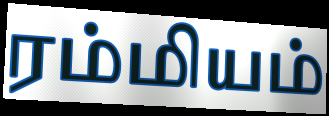
ரம்மியம்